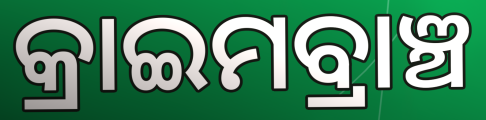
କ୍ରାଇମବ୍ରାଞ୍ଚ